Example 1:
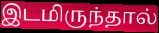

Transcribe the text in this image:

இடமிருந்தால்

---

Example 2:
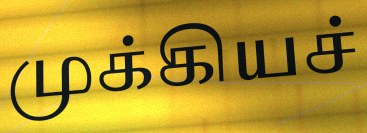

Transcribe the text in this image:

முக்கியச்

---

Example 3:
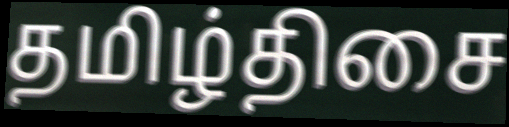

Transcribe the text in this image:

தமிழ்திசை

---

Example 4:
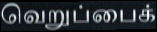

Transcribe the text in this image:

வெறுப்பைக்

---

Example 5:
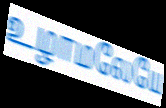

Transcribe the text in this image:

உழாமலேயே